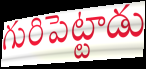
గురిపెట్టాడు